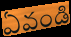
ఏవండి